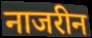
नाजरीन